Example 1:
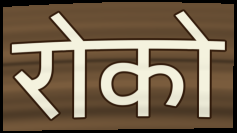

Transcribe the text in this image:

रोको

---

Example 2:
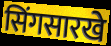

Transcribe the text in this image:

सिंगसारखे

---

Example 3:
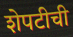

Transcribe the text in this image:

शेपटीची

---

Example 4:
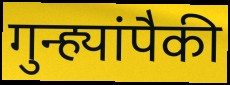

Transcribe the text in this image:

गुन्ह्यांपैकी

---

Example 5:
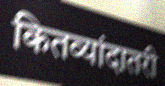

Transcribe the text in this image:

कितव्यांदातरी